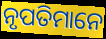
ନୃପତିମାନେ